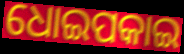
ଧୋଇପକାଇ